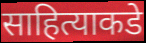
साहित्याकडे